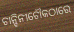
ଚାନ୍ଦିନୀଚୌକଠାରେ